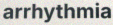
arrhythmia